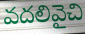
వదలివైచి